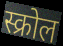
स्क्रोल